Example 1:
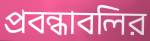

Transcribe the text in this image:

প্রবন্ধাবলির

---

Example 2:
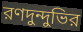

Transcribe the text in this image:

রণদুন্দুভির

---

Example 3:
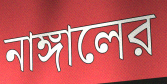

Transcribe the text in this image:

নাঙ্গালের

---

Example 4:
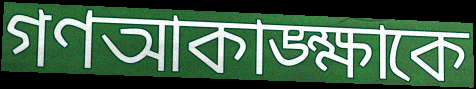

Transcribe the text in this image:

গণআকাঙ্ক্ষাকে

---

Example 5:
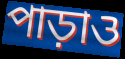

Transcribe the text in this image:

পাড়াও